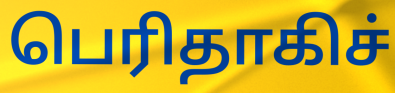
பெரிதாகிச்